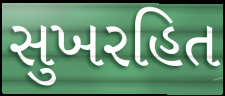
સુખરહિત